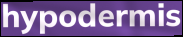
hypodermis